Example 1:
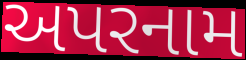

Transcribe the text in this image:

અપરનામ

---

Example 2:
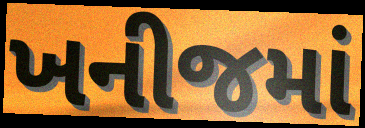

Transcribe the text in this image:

ખનીજમાં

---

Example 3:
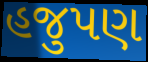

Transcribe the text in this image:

હજુપણ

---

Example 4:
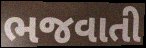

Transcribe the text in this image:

ભજવાતી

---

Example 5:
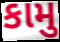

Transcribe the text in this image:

કામુ